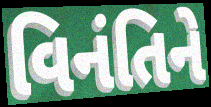
વિનંતિને